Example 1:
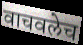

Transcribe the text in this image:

वाचवलेच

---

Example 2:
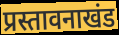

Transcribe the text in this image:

प्रस्तावनाखंड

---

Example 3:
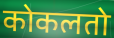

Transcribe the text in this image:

कोकलतो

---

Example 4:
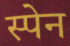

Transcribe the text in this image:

स्पेन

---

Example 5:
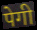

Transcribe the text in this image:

पेगी